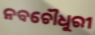
ନବଚୌଧୁରୀ